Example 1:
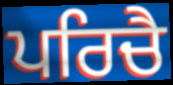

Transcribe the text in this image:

ਪਰਿਚੈ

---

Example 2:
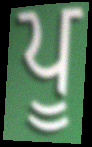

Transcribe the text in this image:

ਪੂ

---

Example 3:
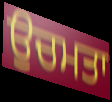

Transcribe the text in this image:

ਉਚਮਤਾ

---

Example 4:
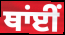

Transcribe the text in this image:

ਥਾਂਈਂ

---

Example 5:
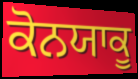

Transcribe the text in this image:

ਕੋਨਯਾਕੂ